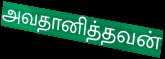
அவதானித்தவன்